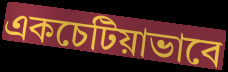
একচেটিয়াভাবে